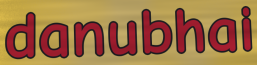
danubhai